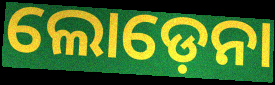
ଲୋଡ଼େନା